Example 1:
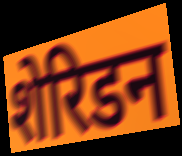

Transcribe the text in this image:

शेरिडन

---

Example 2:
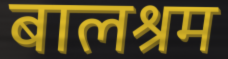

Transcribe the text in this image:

बालश्रम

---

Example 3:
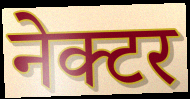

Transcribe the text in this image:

नेक्टर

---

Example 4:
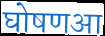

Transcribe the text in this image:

घोषणआ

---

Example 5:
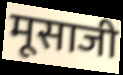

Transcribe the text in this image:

मूसाजी